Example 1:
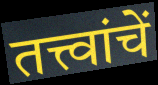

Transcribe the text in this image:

तत्त्वांचें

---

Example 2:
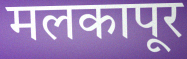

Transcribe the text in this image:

मलकापूर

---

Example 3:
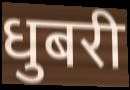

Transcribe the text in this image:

धुबरी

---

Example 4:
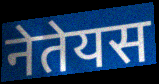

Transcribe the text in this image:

नेतेयस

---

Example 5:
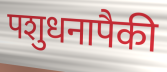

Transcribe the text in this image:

पशुधनापैकी